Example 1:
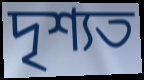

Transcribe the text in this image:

দৃশ্যত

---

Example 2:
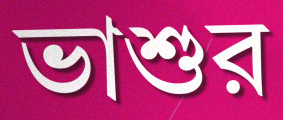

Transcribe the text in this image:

ভাশুর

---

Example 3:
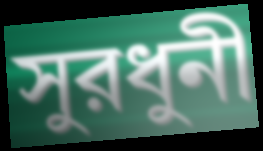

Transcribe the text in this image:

সুরধুনী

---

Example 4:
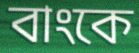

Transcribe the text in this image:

বাংকে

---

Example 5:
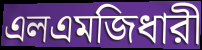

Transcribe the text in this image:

এলএমজিধারী